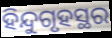
ହିନ୍ଦୁଗୃହସ୍ଥର